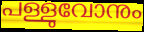
പള്ളുവോനും